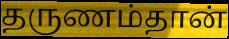
தருணம்தான்